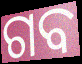
ଗବ